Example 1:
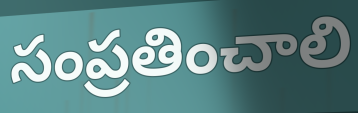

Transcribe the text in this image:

సంప్రతించాలి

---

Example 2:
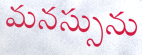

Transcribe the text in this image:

మనస్సును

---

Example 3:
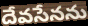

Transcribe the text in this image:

దేవసేనను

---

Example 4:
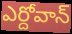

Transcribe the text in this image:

ఎర్దోవాన్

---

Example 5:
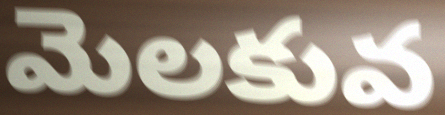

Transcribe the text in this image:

మెలకువ